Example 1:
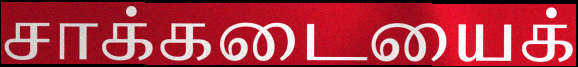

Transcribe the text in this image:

சாக்கடையைக்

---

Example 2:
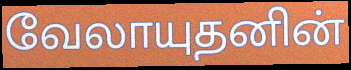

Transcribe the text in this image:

வேலாயுதனின்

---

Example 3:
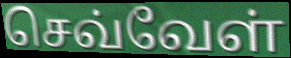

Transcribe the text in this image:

செவ்வேள்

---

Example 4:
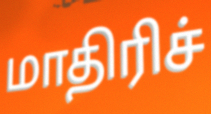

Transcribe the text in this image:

மாதிரிச்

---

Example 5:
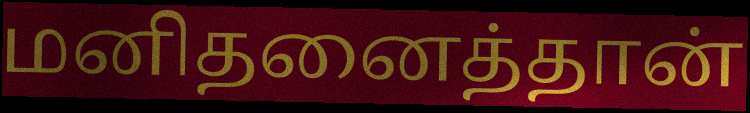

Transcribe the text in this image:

மனிதனைத்தான்